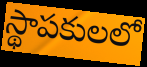
స్థాపకులలో